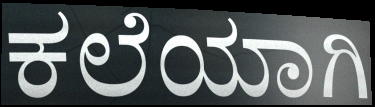
ಕಲೆಯಾಗಿ